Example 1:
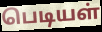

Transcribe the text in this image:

பெடியள்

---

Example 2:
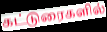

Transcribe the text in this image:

கட்டுரைகளில்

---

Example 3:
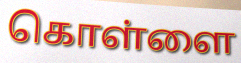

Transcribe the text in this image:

கொள்ளை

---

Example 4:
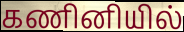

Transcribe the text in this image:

கணினியில்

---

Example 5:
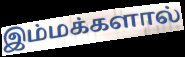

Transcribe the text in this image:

இம்மக்களால்